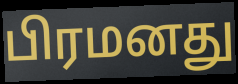
பிரமனது